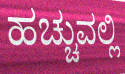
ಹಚ್ಚುವಲ್ಲಿ